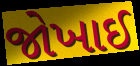
જોખાઈ